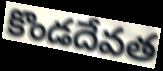
కొండదేవత